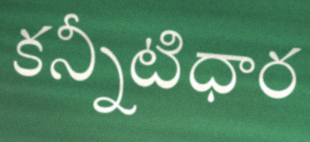
కన్నీటిధార